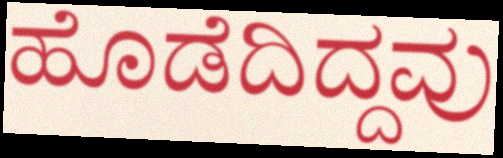
ಹೊಡೆದಿದ್ದವು